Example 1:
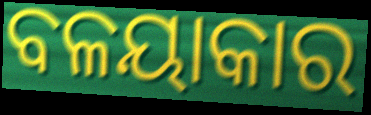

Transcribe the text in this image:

ବଳୟାକାର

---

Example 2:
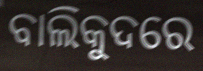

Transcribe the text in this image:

ବାଲିକୁଦରେ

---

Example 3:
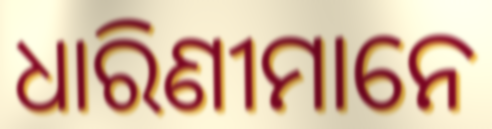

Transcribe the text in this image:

ଧାରିଣୀମାନେ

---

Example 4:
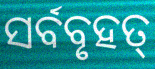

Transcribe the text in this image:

ସର୍ବବୃହତ୍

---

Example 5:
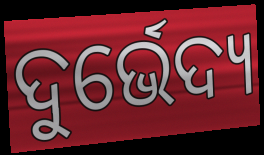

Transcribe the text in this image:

ଦୁର୍ଭେଦ୍ୟ